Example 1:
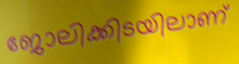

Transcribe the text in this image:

ജോലിക്കിടയിലാണ്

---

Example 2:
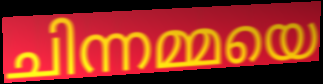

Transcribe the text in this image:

ചിന്നമ്മയെ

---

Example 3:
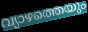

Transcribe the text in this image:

വ്യാഴത്തെയും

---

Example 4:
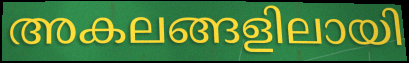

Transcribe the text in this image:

അകലങ്ങളിലായി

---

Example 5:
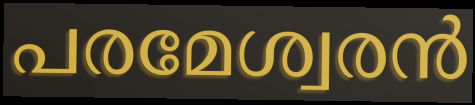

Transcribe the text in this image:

പരമേശ്വരൻ